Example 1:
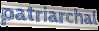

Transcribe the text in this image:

patriarchal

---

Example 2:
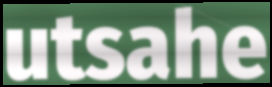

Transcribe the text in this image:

utsahe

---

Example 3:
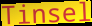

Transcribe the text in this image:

Tinsel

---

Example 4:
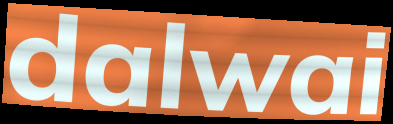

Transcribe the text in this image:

dalwai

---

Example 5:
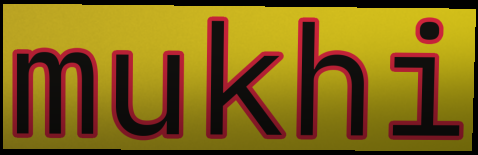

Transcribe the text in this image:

mukhi